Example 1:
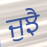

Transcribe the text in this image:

ਜੁਝੈ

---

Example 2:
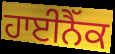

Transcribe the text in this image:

ਹਾਈਨੈੱਕ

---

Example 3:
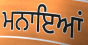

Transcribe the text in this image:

ਮਨਾਇਆਂ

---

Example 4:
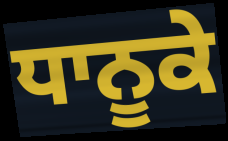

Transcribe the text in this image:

ਧਾਨੂਕੇ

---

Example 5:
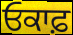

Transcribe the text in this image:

ਓਕਾਫ਼